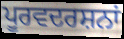
ਪੂਰਵਦਰਸ਼ਨਾਂ